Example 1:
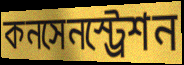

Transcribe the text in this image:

কনসেনস্ট্রেশন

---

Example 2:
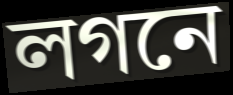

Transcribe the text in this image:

লগনে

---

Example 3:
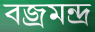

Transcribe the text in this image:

বজ্রমন্দ্র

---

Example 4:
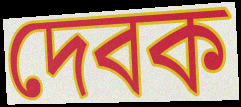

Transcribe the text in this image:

দেবক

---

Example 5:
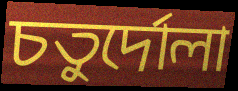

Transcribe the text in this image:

চতুর্দোলা